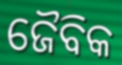
ଜୈବିକ